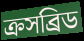
ক্রসব্রিড